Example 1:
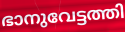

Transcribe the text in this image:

ഭാനുവേട്ടത്തി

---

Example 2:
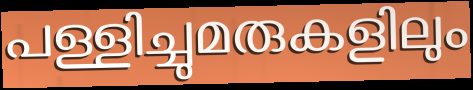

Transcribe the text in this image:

പള്ളിച്ചുമരുകളിലും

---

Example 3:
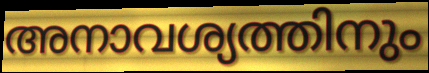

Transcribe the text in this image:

അനാവശ്യത്തിനും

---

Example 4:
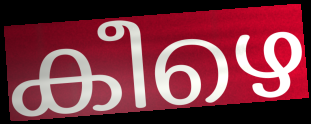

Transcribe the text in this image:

കീഴെ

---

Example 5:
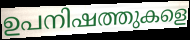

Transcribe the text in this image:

ഉപനിഷത്തുകളെ